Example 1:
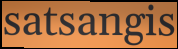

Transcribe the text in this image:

satsangis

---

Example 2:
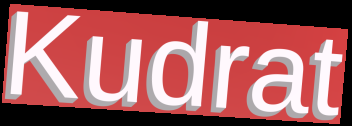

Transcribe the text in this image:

Kudrat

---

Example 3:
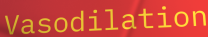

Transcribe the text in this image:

Vasodilation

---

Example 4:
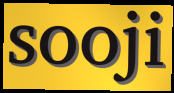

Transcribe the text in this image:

sooji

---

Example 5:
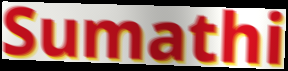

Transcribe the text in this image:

Sumathi